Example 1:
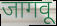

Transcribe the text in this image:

जागवू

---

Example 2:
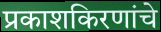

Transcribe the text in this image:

प्रकाशकिरणांचे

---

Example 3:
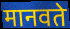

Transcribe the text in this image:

मानवते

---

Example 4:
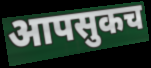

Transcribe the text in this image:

आपसुकच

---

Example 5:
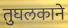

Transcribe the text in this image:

तुघलकाने